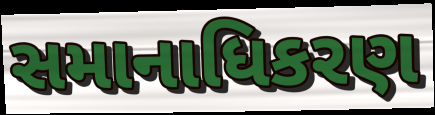
સમાનાધિકરણ